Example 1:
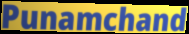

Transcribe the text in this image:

Punamchand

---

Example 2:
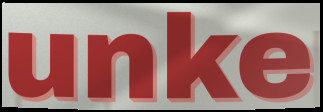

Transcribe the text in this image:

unke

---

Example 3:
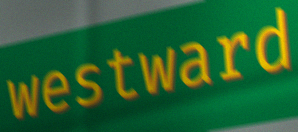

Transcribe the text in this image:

westward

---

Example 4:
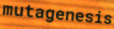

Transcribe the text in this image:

mutagenesis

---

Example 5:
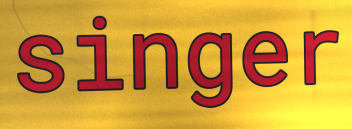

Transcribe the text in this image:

singer